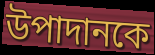
উপাদানকে